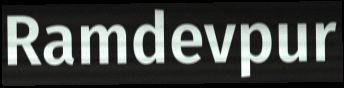
Ramdevpur